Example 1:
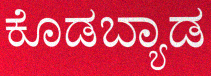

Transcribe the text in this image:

ಕೊಡಬ್ಯಾಡ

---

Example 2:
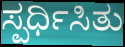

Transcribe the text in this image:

ಸ್ಪರ್ಧಿಸಿತು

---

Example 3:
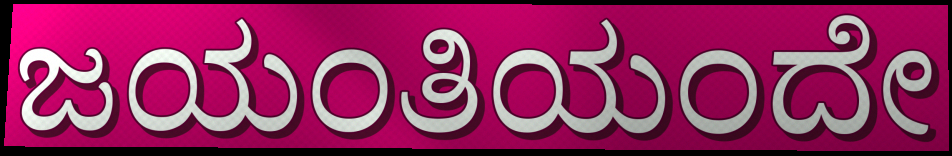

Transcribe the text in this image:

ಜಯಂತಿಯಂದೇ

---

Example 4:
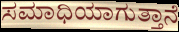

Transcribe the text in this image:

ಸಮಾಧಿಯಾಗುತ್ತಾನೆ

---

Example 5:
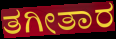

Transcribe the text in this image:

ತಗೀತಾರ